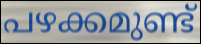
പഴക്കമുണ്ട്